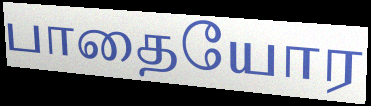
பாதையோர